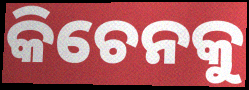
କିଚେନକୁ